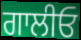
ਗਾਲੀਓ